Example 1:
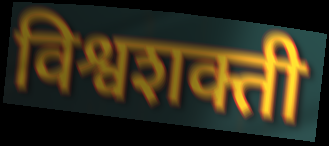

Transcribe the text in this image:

विश्वशक्ती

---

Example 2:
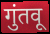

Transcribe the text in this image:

गुंतवू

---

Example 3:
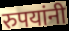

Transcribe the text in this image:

रुपयांनी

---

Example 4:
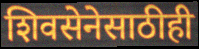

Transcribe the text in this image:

शिवसेनेसाठीही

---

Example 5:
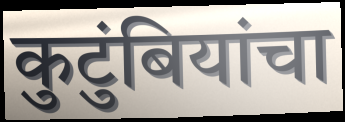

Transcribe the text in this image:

कुटुंबियांचा